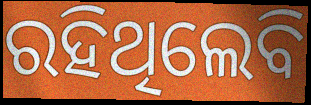
ରହିଥିଲେବି